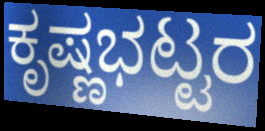
ಕೃಷ್ಣಭಟ್ಟರ